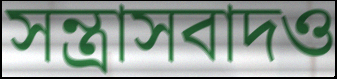
সন্ত্রাসবাদও